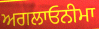
ਅਗਲਾਓਨੀਮਾ